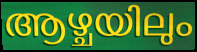
ആഴ്ചയിലും